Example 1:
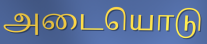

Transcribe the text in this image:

அடையொடு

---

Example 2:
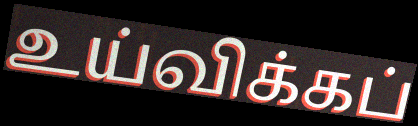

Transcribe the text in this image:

உய்விக்கப்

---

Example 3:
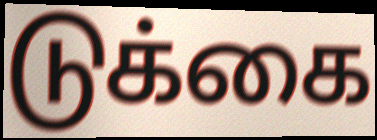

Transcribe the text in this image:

டுக்கை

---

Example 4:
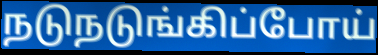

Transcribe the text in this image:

நடுநடுங்கிப்போய்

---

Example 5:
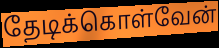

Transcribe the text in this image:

தேடிக்கொள்வேன்